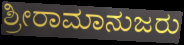
ಶ್ರೀರಾಮಾನುಜರು